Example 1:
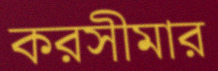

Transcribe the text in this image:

করসীমার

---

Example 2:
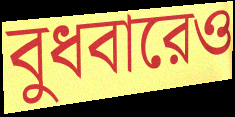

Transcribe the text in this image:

বুধবারেও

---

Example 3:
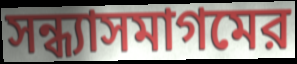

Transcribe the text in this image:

সন্ধ্যাসমাগমের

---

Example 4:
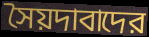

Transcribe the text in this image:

সৈয়দাবাদের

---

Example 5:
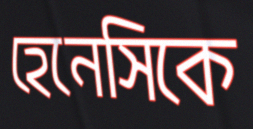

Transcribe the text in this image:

হেনেসিকে